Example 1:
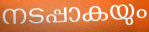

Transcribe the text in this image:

നടപ്പാകയും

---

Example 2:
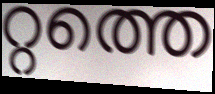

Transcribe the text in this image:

റ്റത്തെ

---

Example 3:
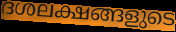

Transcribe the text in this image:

ദശലക്ഷങ്ങളുടെ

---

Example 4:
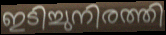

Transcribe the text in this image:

ഇടിച്ചുനിരത്തി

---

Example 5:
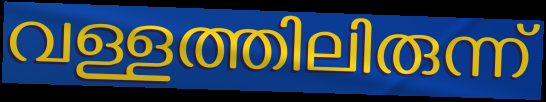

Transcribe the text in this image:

വള്ളത്തിലിരുന്ന്